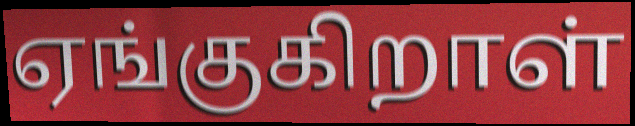
ஏங்குகிறாள்